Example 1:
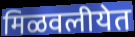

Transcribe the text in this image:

मिळवलीयेत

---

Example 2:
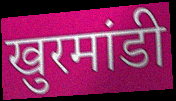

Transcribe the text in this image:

खुरमांडी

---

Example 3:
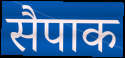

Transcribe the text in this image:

सैपाक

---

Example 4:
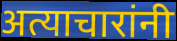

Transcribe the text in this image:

अत्याचारांनी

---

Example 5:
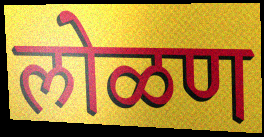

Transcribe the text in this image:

लोळण